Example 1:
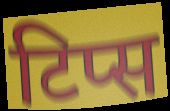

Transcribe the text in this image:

टिप्स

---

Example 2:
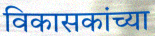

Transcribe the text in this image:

विकासकांच्या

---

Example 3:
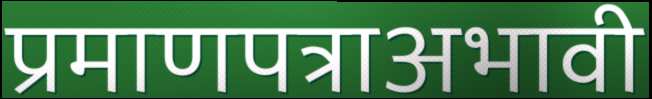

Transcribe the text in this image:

प्रमाणपत्राअभावी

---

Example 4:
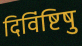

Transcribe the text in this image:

दिवि॑ष्टिषु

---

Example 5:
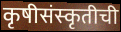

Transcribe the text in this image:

कृषीसंस्कृतीची